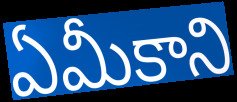
ఏమీకాని